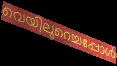
വെയിലുറെച്ചപ്പോൾ